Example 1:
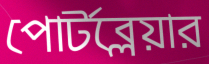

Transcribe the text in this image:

পোর্টব্লেয়ার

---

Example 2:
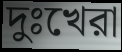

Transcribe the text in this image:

দুঃখেরা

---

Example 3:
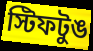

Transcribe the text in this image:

স্টিফটুঙ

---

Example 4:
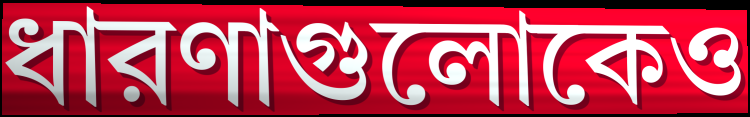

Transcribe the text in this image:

ধারণাগুলোকেও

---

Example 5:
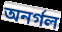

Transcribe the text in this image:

অনর্গল